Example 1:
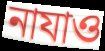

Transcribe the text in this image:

নাযাও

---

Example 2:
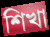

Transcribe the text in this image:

শিখা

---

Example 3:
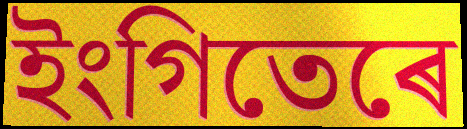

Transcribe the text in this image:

ইংগিতেৰে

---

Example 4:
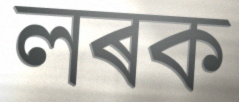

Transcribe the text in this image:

লৰক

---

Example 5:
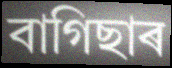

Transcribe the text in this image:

বাগিছাৰ